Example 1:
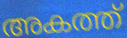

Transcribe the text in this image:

അകത്ത്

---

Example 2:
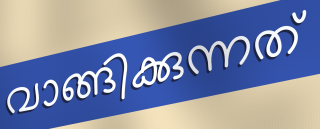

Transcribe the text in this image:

വാങ്ങിക്കുന്നത്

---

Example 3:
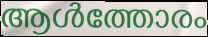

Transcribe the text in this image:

ആൾത്തോരം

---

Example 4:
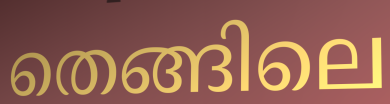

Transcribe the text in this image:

തെങ്ങിലെ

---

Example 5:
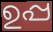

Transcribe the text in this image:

ഉപ്പ